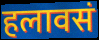
हलावसं